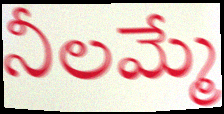
నీలమ్మే